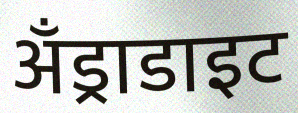
अँड्राडाइट